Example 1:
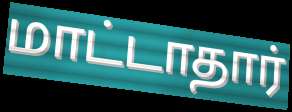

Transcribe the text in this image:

மாட்டாதார்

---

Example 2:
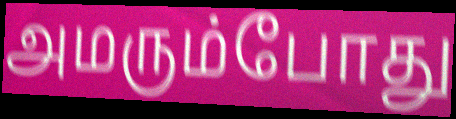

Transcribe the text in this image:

அமரும்போது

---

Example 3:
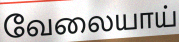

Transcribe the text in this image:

வேலையாய்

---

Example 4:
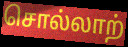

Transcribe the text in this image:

சொல்லாற்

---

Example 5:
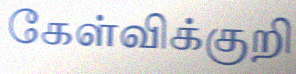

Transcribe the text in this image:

கேள்விக்குறி